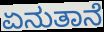
ಏನುತಾನೆ